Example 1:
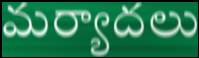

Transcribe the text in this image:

మర్యాదలు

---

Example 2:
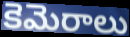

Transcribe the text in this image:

కెమెరాలు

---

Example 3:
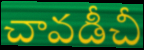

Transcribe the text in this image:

చావడీచీ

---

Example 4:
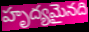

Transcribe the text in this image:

హృద్యమైనది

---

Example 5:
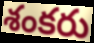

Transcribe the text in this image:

శంకరు